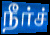
நீர்ச்